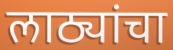
लाठ्यांचा